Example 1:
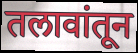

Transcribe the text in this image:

तलावांतून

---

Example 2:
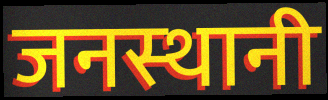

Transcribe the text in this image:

जनस्थानी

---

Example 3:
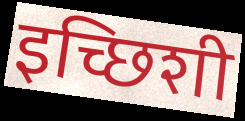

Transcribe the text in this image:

इच्छिशी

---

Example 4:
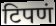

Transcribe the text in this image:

टिपणं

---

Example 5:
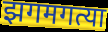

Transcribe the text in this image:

झगमगत्या